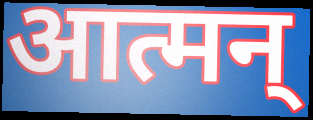
आत्मन्